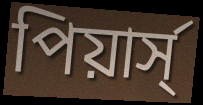
পিয়ার্স্